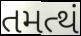
તમત્થં